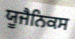
ਯੂਜੈਨਿਕਸ